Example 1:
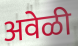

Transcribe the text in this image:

अवेळी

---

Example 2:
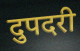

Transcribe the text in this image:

दुपदरी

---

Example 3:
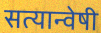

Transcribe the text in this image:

सत्यान्वेषी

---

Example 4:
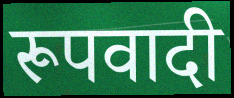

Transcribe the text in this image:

रूपवादी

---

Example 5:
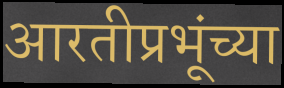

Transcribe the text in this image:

आरतीप्रभूंच्या